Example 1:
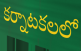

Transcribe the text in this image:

కర్నాటకలలో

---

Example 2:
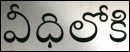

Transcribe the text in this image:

వీధిలోకి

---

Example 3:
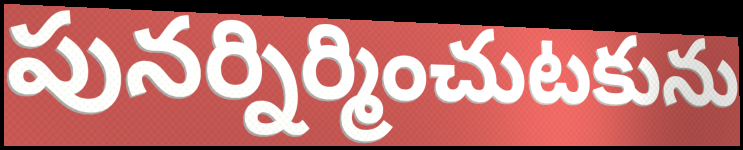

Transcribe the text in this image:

పునర్నిర్మించుటకును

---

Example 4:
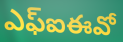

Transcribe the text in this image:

ఎఫ్ఐఈవో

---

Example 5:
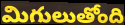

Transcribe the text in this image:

మిగులుతోంది